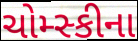
ચોમ્સ્કીના